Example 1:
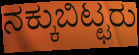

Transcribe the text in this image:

ನಕ್ಕುಬಿಟ್ಟರು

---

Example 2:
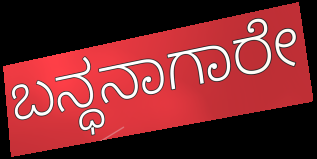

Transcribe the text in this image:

ಬನ್ಧನಾಗಾರೇ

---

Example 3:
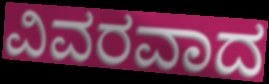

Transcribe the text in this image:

ವಿವರವಾದ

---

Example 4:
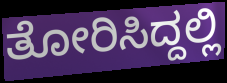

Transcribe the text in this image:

ತೋರಿಸಿದ್ದಲ್ಲಿ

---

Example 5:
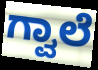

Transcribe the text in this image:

ಗ್ವಾಲೆ